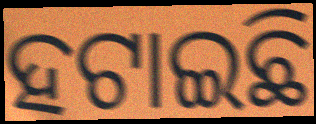
ହଟାଇଛି